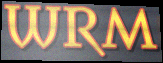
WRM